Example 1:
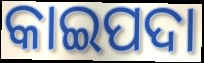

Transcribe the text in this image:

କାଇପଦା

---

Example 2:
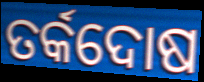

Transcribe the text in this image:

ତର୍କଦୋଷ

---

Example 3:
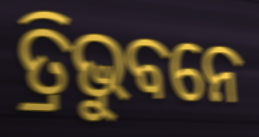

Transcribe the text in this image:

ତ୍ରିଭୁବନେ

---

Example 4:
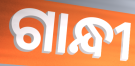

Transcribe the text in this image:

ଗାନ୍ଧୀ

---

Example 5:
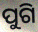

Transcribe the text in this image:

ପୁଗି